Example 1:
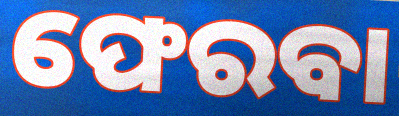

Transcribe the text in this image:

ଫେରବା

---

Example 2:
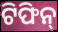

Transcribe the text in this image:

ଟିଫିନ୍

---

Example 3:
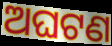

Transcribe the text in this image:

ଅଘଟଣ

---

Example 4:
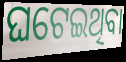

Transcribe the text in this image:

ଘଟେଇଥିବା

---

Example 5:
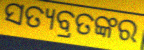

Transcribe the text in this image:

ସତ୍ୟବ୍ରତଙ୍କର